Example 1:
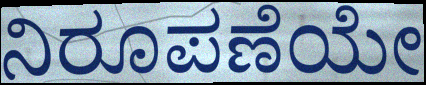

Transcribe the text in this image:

ನಿರೂಪಣೆಯೇ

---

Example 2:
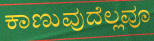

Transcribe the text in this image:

ಕಾಣುವುದೆಲ್ಲವೂ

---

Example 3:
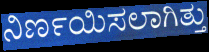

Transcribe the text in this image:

ನಿರ್ಣಯಿಸಲಾಗಿತ್ತು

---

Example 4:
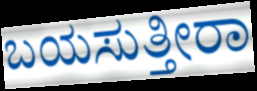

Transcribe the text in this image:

ಬಯಸುತ್ತೀರಾ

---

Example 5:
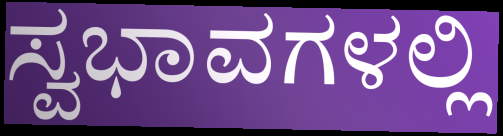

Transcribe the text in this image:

ಸ್ವಭಾವಗಳಲ್ಲಿ